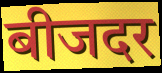
बीजदर